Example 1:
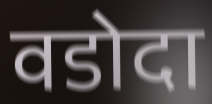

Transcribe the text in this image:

वडोदा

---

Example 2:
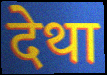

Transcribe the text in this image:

देथा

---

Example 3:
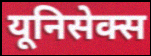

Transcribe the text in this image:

यूनिसेक्स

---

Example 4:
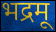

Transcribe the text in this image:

भद्रमू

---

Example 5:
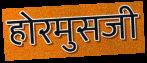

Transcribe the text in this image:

होरमुसजी